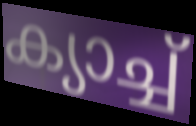
ക്യാച്ച്